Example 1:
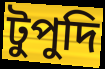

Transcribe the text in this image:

টুপুদি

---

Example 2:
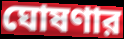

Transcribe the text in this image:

ঘোষণার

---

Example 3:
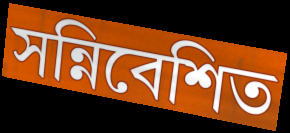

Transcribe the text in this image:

সন্নিবেশিত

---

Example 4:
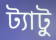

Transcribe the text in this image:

ট্যাটু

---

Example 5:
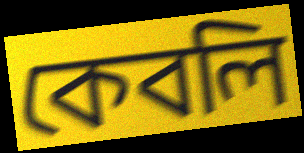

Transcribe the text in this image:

কেবলি